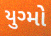
યુગ્મો